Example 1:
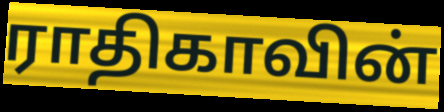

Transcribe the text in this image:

ராதிகாவின்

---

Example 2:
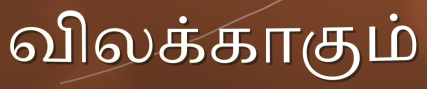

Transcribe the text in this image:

விலக்காகும்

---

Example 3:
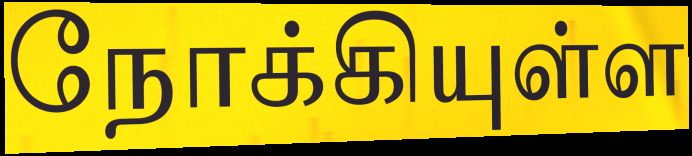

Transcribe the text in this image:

நோக்கியுள்ள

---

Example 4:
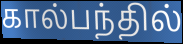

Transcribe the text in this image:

கால்பந்தில்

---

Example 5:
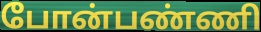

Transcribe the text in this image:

போன்பண்ணி